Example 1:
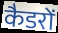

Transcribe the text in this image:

कैडरों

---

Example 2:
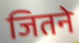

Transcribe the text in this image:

जितने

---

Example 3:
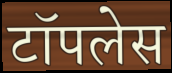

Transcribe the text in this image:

टॉपलेस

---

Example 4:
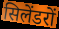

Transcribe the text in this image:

सिलेंडरों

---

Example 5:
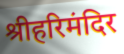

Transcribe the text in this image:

श्रीहरिमंदिर